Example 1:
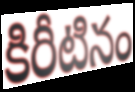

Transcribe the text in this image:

కిరీటినం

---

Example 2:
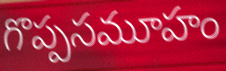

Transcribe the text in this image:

గొప్పసమూహం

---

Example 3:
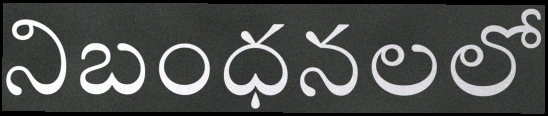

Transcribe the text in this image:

నిబంధనలలో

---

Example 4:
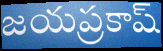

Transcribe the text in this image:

జయప్రకాష్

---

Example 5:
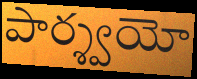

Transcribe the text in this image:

పార్శ్వయో